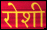
रोशी